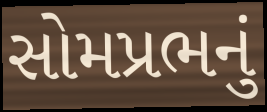
સોમપ્રભનું